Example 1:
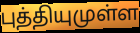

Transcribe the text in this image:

புத்தியுமுள்ள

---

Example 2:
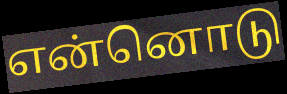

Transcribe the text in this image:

என்னொடு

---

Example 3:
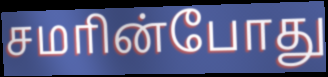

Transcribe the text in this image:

சமரின்போது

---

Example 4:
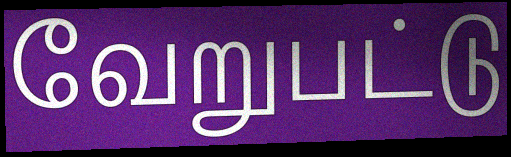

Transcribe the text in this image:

வேறுபட்டு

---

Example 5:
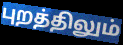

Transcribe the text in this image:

புறத்திலும்